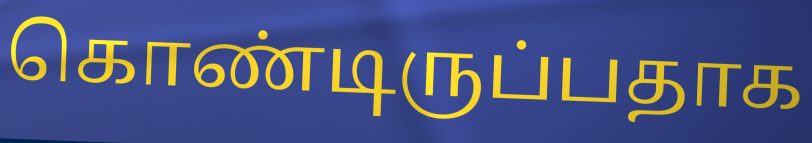
கொண்டிருப்பதாக